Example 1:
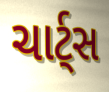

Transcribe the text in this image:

ચાર્ટ્સ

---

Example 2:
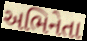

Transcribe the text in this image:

અભિનેતા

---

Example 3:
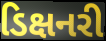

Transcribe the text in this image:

ડિક્ષનરી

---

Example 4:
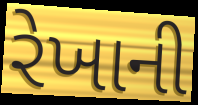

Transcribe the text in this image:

રેખાની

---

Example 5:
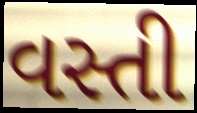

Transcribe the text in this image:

વસ્તી